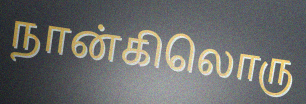
நான்கிலொரு